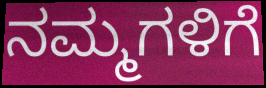
ನಮ್ಮಗಳಿಗೆ